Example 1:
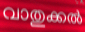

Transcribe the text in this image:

വാതുക്കൽ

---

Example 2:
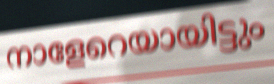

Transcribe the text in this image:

നാളേറെയായിട്ടും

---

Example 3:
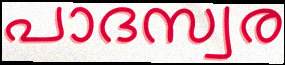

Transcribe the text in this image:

പാദസ്വര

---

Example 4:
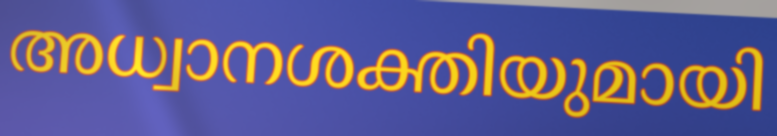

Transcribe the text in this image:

അധ്വാനശക്തിയുമായി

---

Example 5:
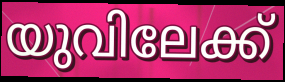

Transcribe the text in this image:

യുവിലേക്ക്